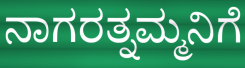
ನಾಗರತ್ನಮ್ಮನಿಗೆ